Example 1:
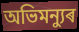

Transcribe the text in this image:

অভিমন্যুৰ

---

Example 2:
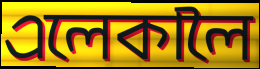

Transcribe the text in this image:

এলেকালৈ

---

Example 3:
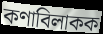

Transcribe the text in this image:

কণাবিলাকক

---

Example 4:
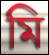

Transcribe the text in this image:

মি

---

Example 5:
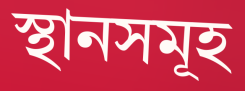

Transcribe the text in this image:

স্থানসমূহ